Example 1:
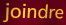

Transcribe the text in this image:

joindre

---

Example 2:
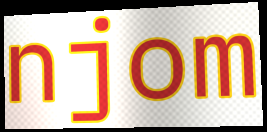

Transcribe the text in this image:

njom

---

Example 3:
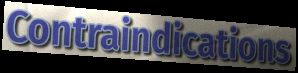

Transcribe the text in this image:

Contraindications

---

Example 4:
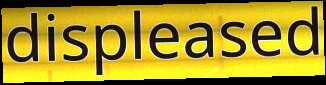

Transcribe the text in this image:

displeased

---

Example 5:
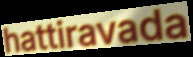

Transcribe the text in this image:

hattiravada